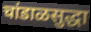
चांडाळसुद्धा